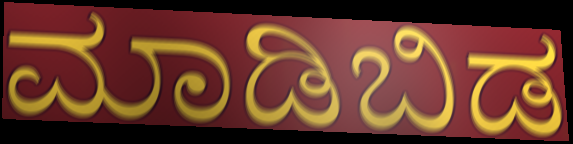
ಮಾಡಿಬಿಡ